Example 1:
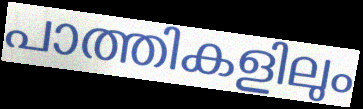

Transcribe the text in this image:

പാത്തികളിലും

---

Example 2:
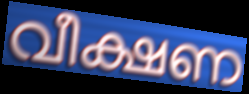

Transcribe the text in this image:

വീക്ഷണ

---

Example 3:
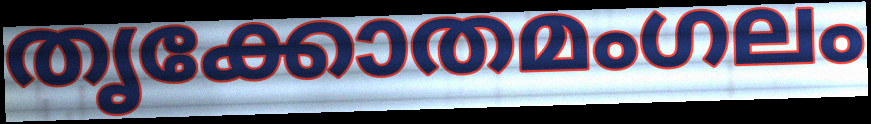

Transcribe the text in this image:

തൃക്കോതമംഗലം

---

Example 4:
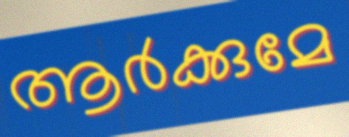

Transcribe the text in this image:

ആർക്കുമേ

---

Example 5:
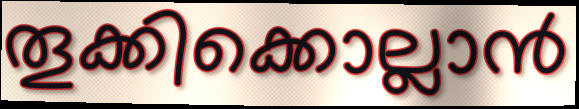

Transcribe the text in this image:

തൂക്കിക്കൊല്ലാൻ